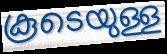
കൂടെയുള്ള